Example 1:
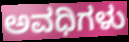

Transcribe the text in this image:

ಅವಧಿಗಳು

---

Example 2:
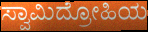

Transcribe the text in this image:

ಸ್ವಾಮಿದ್ರೋಹಿಯ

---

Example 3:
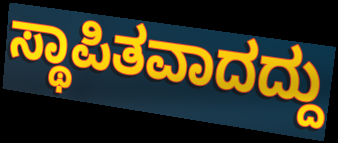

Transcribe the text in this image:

ಸ್ಥಾಪಿತವಾದದ್ದು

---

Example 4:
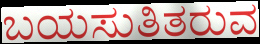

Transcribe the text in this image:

ಬಯಸುತಿತರುವ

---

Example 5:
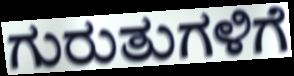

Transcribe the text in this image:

ಗುರುತುಗಳಿಗೆ